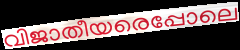
വിജാതീയരെപ്പോലെ